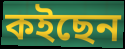
কইছেন